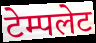
टेम्पलेट